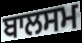
ਬਾਲਸਮ